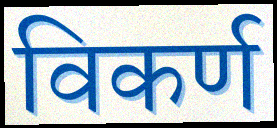
विकर्ण